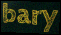
bary